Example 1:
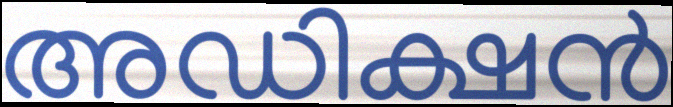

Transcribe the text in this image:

അഡിക്ഷൻ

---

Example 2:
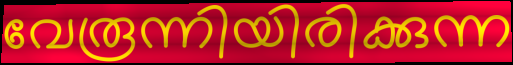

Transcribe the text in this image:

വേരൂന്നിയിരിക്കുന്ന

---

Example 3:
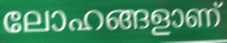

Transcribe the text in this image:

ലോഹങ്ങളാണ്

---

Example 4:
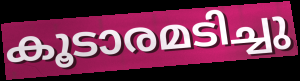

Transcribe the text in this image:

കൂടാരമടിച്ചു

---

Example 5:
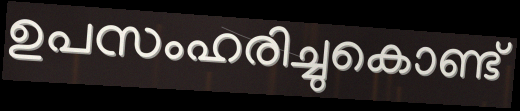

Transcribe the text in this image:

ഉപസംഹരിച്ചുകൊണ്ട്